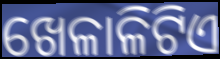
ଖେଳାଳିଟିଏ